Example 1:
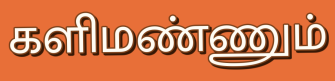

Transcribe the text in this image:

களிமண்ணும்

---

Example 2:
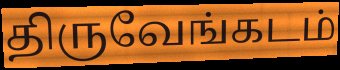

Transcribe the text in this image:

திருவேங்கடம்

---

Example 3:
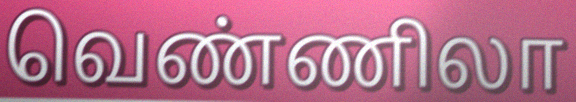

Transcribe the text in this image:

வெண்ணிலா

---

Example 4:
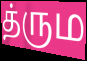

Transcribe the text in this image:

த்ரும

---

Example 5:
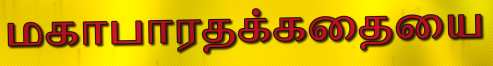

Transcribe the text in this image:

மகாபாரதக்கதையை